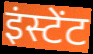
इंस्टेंट